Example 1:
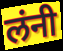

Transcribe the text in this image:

लंनी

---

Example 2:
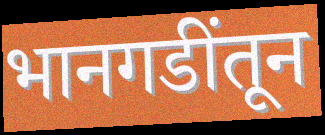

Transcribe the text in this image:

भानगडींतून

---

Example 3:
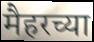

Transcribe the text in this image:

मैहरच्या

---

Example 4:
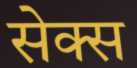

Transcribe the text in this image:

सेक्स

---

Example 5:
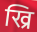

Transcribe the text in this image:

ख्रि